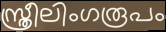
സ്ത്രീലിംഗരൂപം